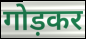
गोड़कर